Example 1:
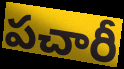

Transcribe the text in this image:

పచారీ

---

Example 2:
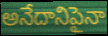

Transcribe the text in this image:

అనేదానిపైనా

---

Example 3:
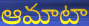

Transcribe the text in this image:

ఆమాటా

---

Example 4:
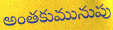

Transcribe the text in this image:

అంతకుమునుపు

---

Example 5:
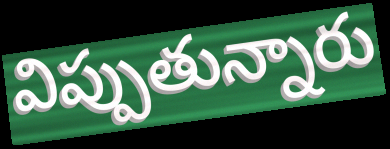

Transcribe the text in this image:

విప్పుతున్నారు